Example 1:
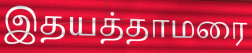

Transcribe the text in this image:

இதயத்தாமரை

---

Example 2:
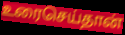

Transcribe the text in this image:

உரைசெய்தான்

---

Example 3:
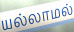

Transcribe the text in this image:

யல்லாமல்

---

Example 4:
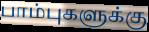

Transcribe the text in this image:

பாம்புகளுக்கு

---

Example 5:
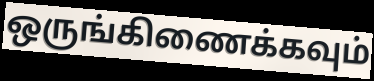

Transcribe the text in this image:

ஒருங்கிணைக்கவும்